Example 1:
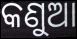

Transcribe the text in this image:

କଣୁଆ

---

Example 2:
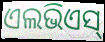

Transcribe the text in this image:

ଏଲଭିଏସ୍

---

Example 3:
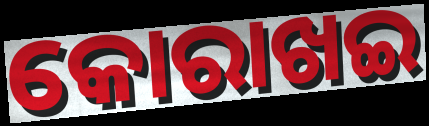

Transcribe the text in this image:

କୋରାଖଇ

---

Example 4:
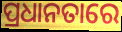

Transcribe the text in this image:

ପ୍ରଧାନତାରେ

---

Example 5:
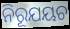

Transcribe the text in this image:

ନିରୂଯୟଚ